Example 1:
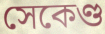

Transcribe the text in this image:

সেকেণ্ড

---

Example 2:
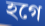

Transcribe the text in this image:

হগে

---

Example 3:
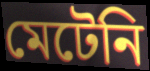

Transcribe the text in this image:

মেটেনি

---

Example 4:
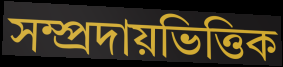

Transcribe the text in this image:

সম্প্রদায়ভিত্তিক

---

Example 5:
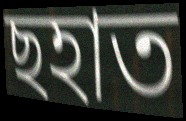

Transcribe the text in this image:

ছহাত